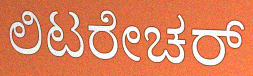
ಲಿಟರೇಚರ್